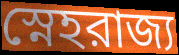
স্নেহরাজ্য